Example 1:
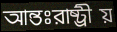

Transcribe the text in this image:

আন্তঃরাষ্ট্রীয়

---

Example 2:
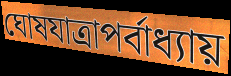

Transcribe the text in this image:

ঘোষযাত্রাপর্বাধ্যায়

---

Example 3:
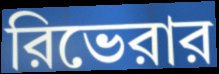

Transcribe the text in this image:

রিভেরার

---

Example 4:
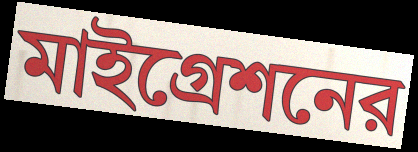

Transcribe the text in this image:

মাইগ্রেশনের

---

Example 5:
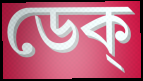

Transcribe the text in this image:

ডেক্